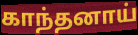
காந்தனாய்